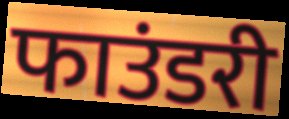
फाउंडरी